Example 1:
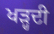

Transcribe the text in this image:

ਖੜ੍ਹਦੀ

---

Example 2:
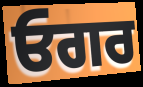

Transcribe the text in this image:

ਓਗਰ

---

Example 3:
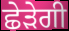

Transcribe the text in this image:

ਛੇੜੇਗੀ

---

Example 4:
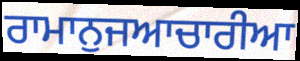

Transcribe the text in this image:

ਰਾਮਾਨੁਜਆਚਾਰੀਆ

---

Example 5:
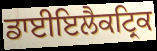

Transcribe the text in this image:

ਡਾਈਇਲੈਕਟ੍ਰਿਕ